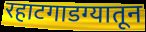
रहाटगाडग्यातून